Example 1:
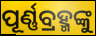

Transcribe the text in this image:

ପୂର୍ଣ୍ଣବ୍ରହ୍ମଙ୍କୁ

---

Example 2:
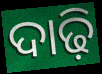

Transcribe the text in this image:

ଦାଢ଼ି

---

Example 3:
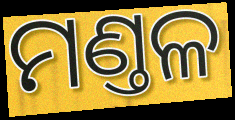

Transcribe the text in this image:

ମଣ୍ତଳ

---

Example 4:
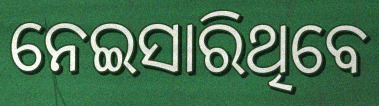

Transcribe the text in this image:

ନେଇସାରିଥିବେ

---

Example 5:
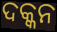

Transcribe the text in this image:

ଦକ୍କନ